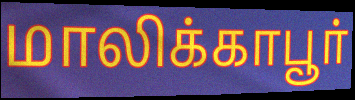
மாலிக்காபூர்